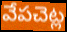
వేపచెట్ల